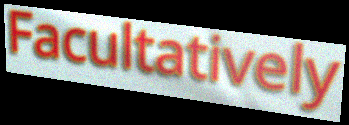
Facultatively